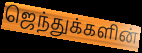
ஜெந்துக்களின்